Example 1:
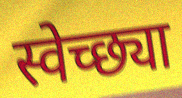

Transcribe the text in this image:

स्वेच्छ्या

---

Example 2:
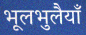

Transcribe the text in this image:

भूलभुलैयाँ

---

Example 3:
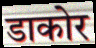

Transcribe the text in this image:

डाकोर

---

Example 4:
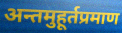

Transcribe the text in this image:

अन्तमुहूर्तप्रमाण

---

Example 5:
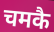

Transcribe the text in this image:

चमकै